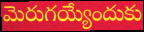
మెరుగయ్యేందుకు